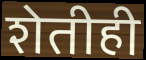
शेतीही